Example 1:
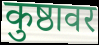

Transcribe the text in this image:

कुष्ठावर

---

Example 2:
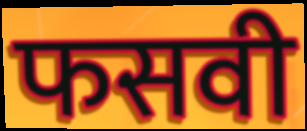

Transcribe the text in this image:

फसवी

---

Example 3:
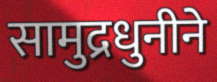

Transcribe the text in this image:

सामुद्रधुनीने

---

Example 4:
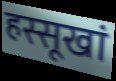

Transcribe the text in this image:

हस्सूखां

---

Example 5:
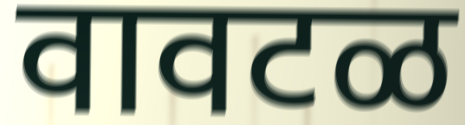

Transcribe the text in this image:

वावटळ